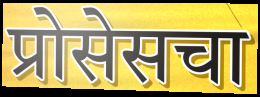
प्रोसेसचा